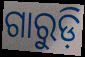
ଗାରୁଡ଼ି